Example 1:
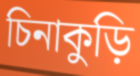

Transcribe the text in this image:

চিনাকুড়ি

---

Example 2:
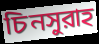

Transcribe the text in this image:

চিনসুরাহ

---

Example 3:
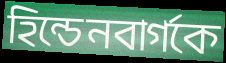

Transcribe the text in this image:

হিন্ডেনবার্গকে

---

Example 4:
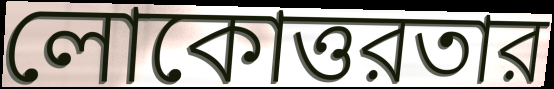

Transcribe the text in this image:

লোকোত্তরতার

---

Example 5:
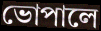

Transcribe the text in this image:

ভোপালে